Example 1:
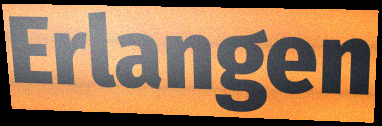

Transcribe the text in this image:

Erlangen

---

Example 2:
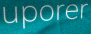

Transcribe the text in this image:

uporer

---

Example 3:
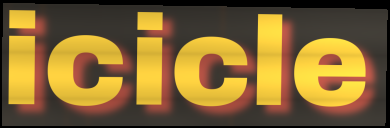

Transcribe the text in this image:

icicle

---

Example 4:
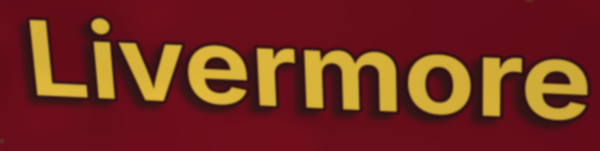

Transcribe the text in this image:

Livermore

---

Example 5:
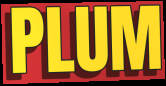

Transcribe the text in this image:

PLUM